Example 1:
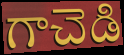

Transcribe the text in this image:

గాచెడి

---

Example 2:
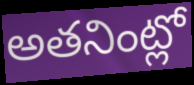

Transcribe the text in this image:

అతనింట్లో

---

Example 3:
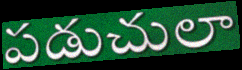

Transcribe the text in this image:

పడుచులా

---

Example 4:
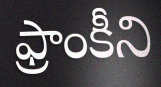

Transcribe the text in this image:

ఫ్రాంకీని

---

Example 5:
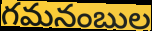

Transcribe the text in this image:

గమనంబుల